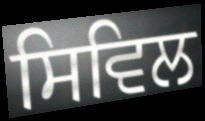
ਸਿਵਿਲ